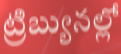
ట్రిబ్యునల్లో